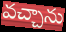
వచ్చాను